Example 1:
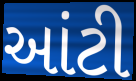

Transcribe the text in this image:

આંટી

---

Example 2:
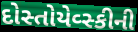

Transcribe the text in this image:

દોસ્તોયેવ્સ્કીની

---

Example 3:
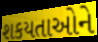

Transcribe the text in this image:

શકયતાઓને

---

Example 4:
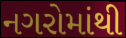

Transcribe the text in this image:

નગરોમાંથી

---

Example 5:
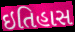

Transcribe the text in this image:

ઇતિહાસ